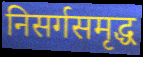
निसर्गसमृद्ध